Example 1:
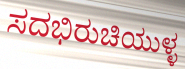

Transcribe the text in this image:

ಸದಭಿರುಚಿಯುಳ್ಳ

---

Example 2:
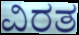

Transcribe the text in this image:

ವಿರತ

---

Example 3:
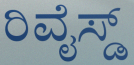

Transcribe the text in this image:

ರಿವೈಸ್ಡ್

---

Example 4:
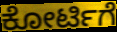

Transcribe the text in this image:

ಕೋರ್ಟಿಗೆ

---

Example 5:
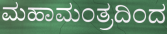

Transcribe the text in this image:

ಮಹಾಮಂತ್ರದಿಂದ